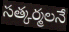
సత్కర్మలనే